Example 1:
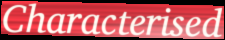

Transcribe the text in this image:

Characterised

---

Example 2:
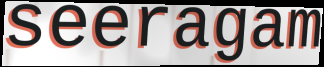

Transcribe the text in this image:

seeragam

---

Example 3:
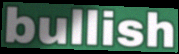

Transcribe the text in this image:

bullish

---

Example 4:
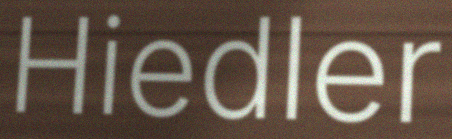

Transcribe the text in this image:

Hiedler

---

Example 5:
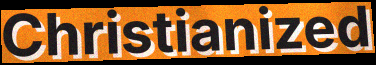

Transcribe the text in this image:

Christianized